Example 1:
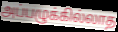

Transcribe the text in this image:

அப்பழுக்கில்லாத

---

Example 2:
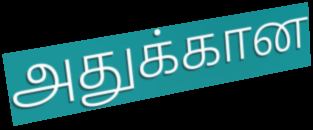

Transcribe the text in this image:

அதுக்கான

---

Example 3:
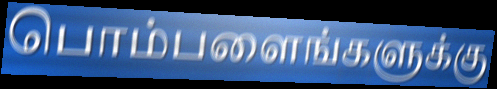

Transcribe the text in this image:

பொம்பளைங்களுக்கு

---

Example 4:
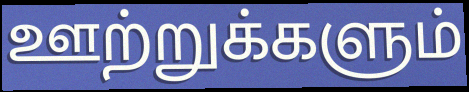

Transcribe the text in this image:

ஊற்றுக்களும்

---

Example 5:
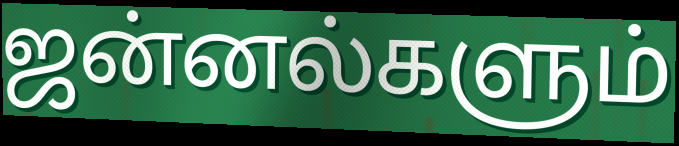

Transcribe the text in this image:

ஜன்னல்களும்